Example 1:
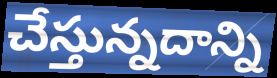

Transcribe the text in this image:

చేస్తున్నదాన్ని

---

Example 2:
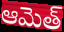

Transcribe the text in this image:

ఆమెత్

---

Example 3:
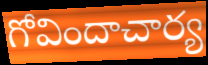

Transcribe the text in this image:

గోవిందాచార్య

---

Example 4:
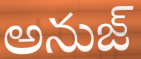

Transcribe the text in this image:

అనుజ్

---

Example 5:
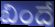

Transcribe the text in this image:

బిందే